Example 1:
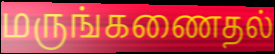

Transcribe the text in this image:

மருங்கணைதல்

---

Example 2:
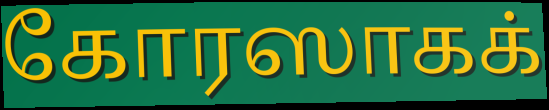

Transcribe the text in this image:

கோரஸாகக்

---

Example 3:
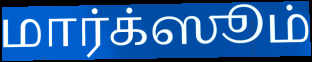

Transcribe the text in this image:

மார்க்ஸூம்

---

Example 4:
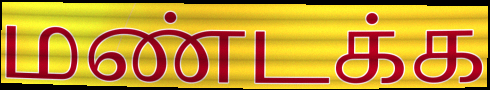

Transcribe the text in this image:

மண்டக்க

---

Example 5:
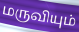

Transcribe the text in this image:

மருவியும்